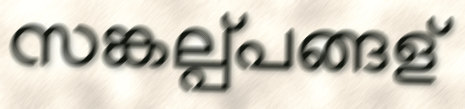
സങ്കല്പ്പങ്ങള്